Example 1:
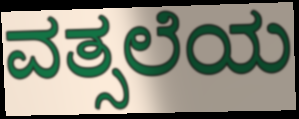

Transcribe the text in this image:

ವತ್ಸಲೆಯ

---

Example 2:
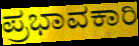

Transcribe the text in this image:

ಪ್ರಭಾವಕಾರಿ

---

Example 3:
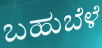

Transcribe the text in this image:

ಬಹುಬೆಳೆ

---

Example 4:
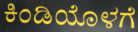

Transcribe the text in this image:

ಕಿಂಡಿಯೊಳಗೆ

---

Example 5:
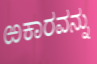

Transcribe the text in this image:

ಱಕಾರವನ್ನು